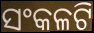
ସଂକଳଟି